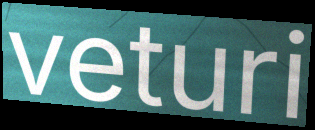
veturi